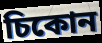
চিকোন